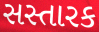
સસ્તારક